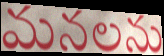
మనలను